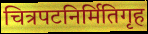
चित्रपटनिर्मितिगृह